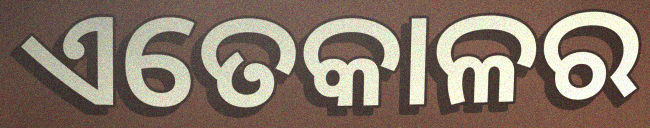
ଏତେକାଳର